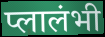
प्लालंभी